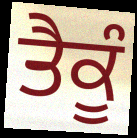
ਤੈਕੂੰ